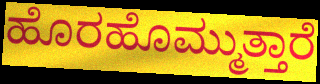
ಹೊರಹೊಮ್ಮುತ್ತಾರೆ